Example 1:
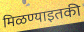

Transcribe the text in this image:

मिळण्याइतकी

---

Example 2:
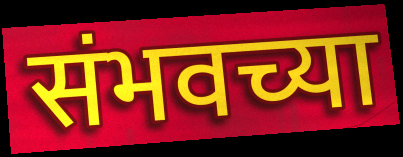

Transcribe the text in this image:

संभवच्या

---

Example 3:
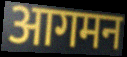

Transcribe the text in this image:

आगमन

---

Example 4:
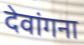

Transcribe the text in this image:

देवांगना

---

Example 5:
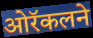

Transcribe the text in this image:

ओरॅकलने